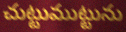
చుట్టుముట్టును